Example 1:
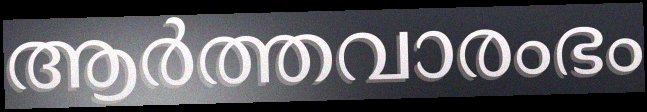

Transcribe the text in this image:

ആർത്തവാരംഭം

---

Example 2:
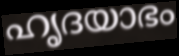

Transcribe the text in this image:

ഹൃദയാഭം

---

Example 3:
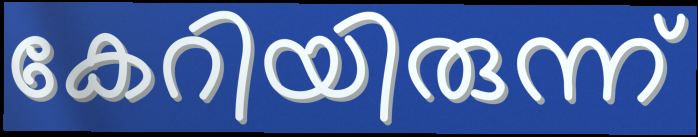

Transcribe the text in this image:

കേറിയിരുന്ന്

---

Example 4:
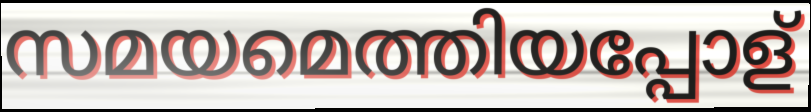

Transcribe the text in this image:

സമയമെത്തിയപ്പോള്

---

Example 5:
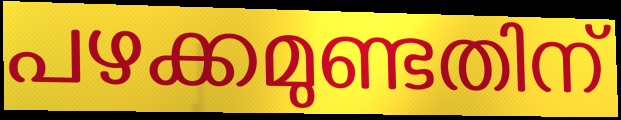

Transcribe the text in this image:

പഴക്കമുണ്ടതിന്